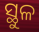
ସ୍ଥୁଳ